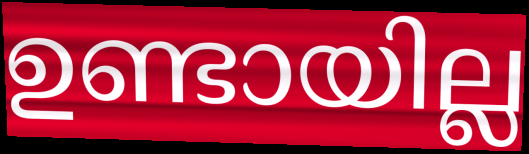
ഉണ്ടായില്ല